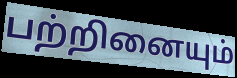
பற்றினையும்